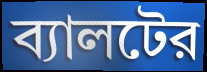
ব্যালটের